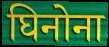
घिनोना